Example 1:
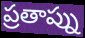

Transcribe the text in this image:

ప్రతాప్ను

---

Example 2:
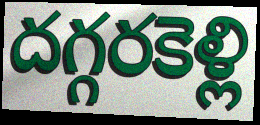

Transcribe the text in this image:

దగ్గరకెళ్లి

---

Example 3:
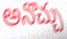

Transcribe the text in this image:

అనొచ్చు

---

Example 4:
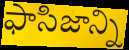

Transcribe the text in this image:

ఫాసిజాన్ని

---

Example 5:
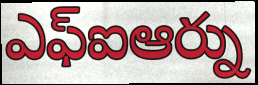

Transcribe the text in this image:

ఎఫ్ఐఆర్ను